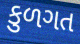
કુળગત